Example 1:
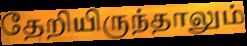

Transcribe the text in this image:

தேறியிருந்தாலும்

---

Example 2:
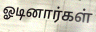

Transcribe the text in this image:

ஓடினார்கள்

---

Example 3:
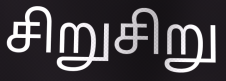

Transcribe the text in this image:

சிறுசிறு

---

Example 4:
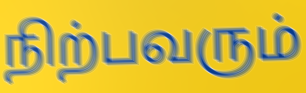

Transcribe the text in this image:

நிற்பவரும்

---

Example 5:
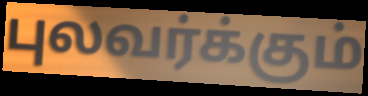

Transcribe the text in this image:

புலவர்க்கும்